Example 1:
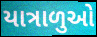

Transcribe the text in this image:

યાત્રાળુઓ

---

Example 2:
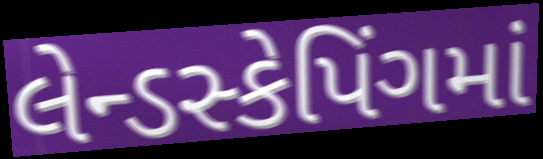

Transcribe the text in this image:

લેન્ડસ્કેપિંગમાં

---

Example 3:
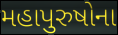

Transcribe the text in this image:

મહાપુરુષોના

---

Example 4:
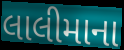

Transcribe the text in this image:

લાલીમાના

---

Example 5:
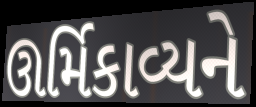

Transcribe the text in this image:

ઊર્મિકાવ્યને